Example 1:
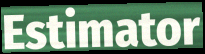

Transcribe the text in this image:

Estimator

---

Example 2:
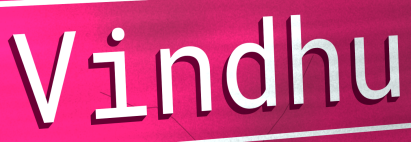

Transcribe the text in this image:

Vindhu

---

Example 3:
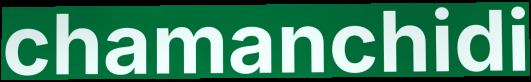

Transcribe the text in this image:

chamanchidi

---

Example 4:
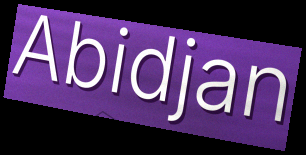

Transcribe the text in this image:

Abidjan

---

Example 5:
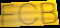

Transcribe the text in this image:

FCB